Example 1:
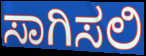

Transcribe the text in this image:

ಸಾಗಿಸಲಿ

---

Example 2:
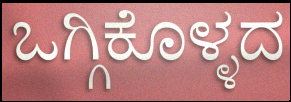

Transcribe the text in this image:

ಒಗ್ಗಿಕೊಳ್ಳದ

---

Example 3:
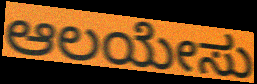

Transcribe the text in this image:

ಆಲಯೇಸು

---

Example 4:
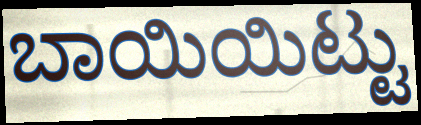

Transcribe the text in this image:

ಬಾಯಿಯಿಟ್ಟು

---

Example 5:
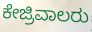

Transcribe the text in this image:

ಕೇಜ್ರಿವಾಲರು